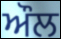
ਔਲ